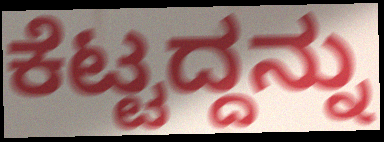
ಕೆಟ್ಟದ್ದನ್ನು